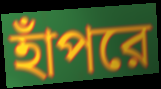
হাঁপরে